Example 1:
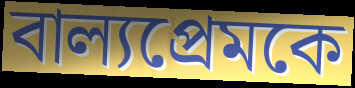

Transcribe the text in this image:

বাল্যপ্রেমকে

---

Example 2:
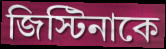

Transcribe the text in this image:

জিস্টিনাকে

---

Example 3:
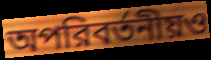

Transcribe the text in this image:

অপরিবর্তনীয়ও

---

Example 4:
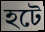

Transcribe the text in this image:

হটে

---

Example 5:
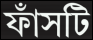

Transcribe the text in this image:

ফাঁসটি